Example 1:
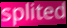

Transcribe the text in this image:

splited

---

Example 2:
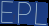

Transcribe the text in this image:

EPL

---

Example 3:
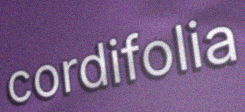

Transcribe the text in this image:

cordifolia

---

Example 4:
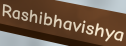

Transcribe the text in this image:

Rashibhavishya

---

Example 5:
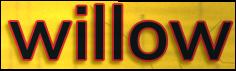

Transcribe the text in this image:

willow